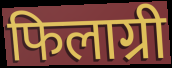
फिलाग्री